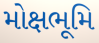
મોક્ષભૂમિ